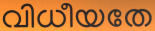
വിധീയതേ